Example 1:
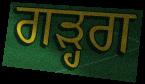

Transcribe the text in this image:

ਗੜ੍ਹਗ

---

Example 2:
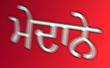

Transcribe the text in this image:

ਮੇਦਾਨੇ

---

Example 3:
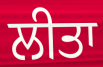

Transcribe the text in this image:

ਲੀਤਾ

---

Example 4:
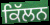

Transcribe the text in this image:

ਕਿੱਲਨ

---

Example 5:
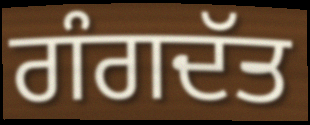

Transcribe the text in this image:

ਗੰਗਦੱਤ